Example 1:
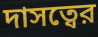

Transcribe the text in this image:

দাসত্বের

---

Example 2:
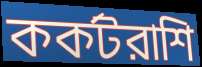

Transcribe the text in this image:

কর্কটরাশি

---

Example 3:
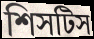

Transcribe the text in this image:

শিসটিস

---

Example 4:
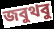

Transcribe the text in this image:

জবুথবু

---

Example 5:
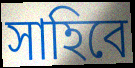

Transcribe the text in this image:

সাহিবে